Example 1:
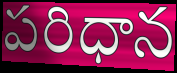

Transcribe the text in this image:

పరిధాన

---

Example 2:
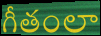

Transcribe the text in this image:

గీతంలా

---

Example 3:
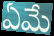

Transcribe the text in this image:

ఏమే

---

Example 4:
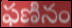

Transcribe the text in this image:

ఫణినం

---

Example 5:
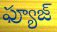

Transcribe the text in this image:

ఫ్యూజ్